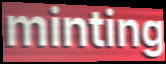
minting